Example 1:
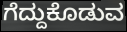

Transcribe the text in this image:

ಗೆದ್ದುಕೊಡುವ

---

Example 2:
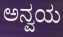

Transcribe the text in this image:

ಅನ್ವಯ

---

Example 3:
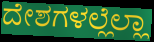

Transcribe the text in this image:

ದೇಶಗಳಲ್ಲೆಲ್ಲಾ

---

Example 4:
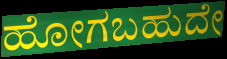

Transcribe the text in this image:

ಹೋಗಬಹುದೇ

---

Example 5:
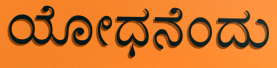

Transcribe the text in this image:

ಯೋಧನೆಂದು